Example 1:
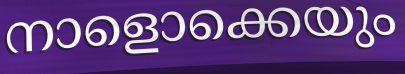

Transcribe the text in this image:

നാളൊക്കെയും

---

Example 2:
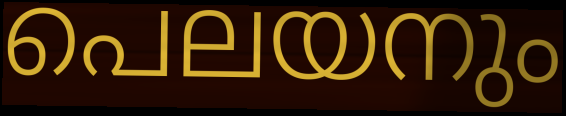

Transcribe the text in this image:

പെലയനും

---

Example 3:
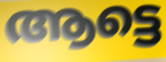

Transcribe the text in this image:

ആട്ടെ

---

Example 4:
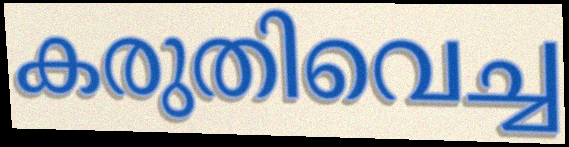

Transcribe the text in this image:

കരുതിവെച്ച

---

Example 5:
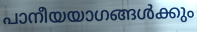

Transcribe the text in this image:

പാനീയയാഗങ്ങൾക്കും